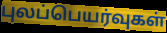
புலப்பெயர்வுகள்